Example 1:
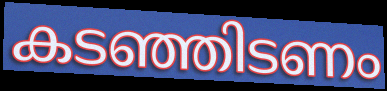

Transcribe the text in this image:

കടഞ്ഞിടണം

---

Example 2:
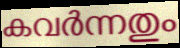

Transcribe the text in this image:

കവർന്നതും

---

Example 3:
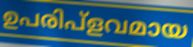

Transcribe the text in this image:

ഉപരിപ്ളവമായ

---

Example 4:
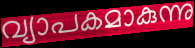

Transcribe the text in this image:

വ്യാപകമാകുന്നു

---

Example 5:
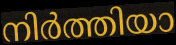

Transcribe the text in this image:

നിർത്തിയാ